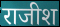
राजीश